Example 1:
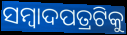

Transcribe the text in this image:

ସମ୍ବାଦପତ୍ରଟିକୁ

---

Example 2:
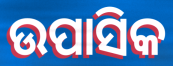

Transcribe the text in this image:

ଉପାସିକ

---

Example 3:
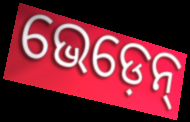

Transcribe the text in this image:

ଭେଡ଼େନ୍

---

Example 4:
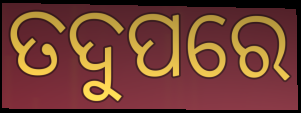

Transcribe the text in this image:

ତଦୁପରେ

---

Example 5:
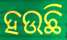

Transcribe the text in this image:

ହଉଛି